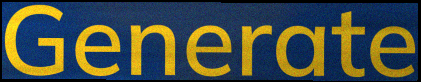
Generate